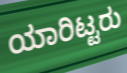
ಯಾರಿಟ್ಟರು